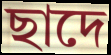
ছাদে